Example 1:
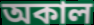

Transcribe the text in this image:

অকাল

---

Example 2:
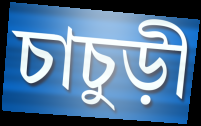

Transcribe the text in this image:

চাচুড়ী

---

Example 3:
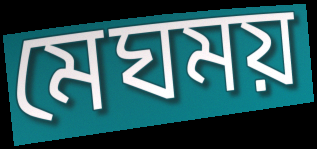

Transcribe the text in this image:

মেঘময়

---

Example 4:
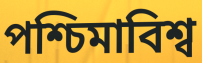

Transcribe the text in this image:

পশ্চিমাবিশ্ব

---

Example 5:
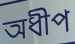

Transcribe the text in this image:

অধীপ